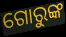
ଗୋରୁଙ୍କ